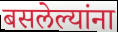
बसलेल्यांना